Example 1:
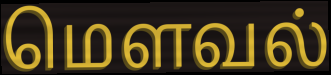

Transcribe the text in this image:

மௌவல்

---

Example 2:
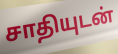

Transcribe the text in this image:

சாதியுடன்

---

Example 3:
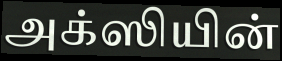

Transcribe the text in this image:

அக்ஸியின்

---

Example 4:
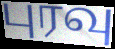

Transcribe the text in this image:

புரவு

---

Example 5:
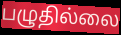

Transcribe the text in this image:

பழுதில்லை